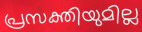
പ്രസക്തിയുമില്ല